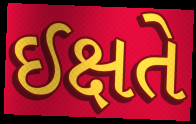
ઈક્ષતે